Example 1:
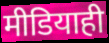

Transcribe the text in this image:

मीडियाही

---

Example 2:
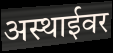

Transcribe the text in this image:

अस्थाईवर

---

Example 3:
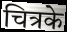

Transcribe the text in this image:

चित्रके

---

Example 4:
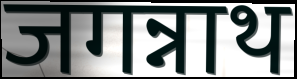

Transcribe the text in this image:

जगन्नाथ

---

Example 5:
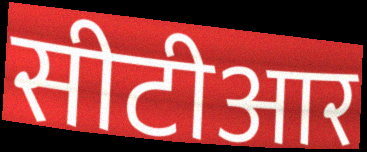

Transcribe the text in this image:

सीटीआर